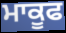
ਮਾਕੂਫ